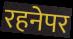
रहनेपर